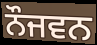
ਨੌਜਵਨ